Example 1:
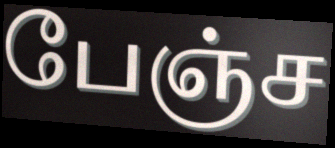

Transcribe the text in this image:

பேஞ்ச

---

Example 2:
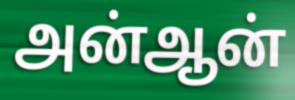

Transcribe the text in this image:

அன்ஆன்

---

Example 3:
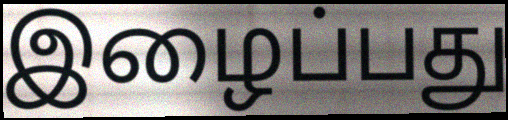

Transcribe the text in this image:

இழைப்பது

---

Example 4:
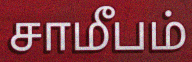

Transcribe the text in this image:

சாமீபம்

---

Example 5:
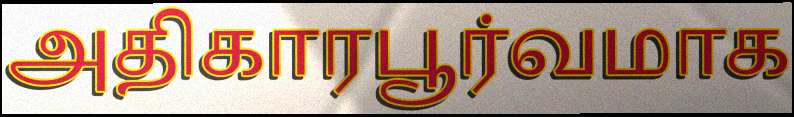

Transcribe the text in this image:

அதிகாரபூர்வமாக